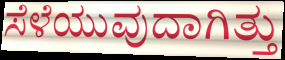
ಸೆಳೆಯುವುದಾಗಿತ್ತು